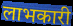
लाभकारी